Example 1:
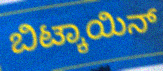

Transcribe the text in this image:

ಬಿಟ್ಕಾಯಿನ್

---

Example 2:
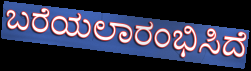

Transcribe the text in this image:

ಬರೆಯಲಾರಂಭಿಸಿದೆ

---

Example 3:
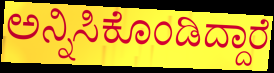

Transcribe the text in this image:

ಅನ್ನಿಸಿಕೊಂಡಿದ್ದಾರೆ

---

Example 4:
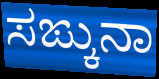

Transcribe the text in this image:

ಸಙ್ಕುನಾ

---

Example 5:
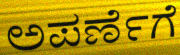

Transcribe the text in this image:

ಅಪರ್ಣೆಗೆ